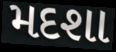
મદશા